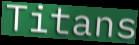
Titans